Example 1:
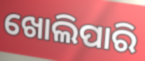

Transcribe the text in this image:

ଖୋଲିପାରି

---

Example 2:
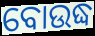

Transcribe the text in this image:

ବୋଉଦ୍ଧ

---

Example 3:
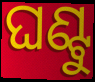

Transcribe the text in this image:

ଘଣ୍ଟୁ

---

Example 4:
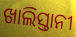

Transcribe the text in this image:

ଖାଲିସ୍ତାନୀ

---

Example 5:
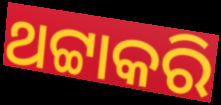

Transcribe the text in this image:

ଥଟ୍ଟାକରି